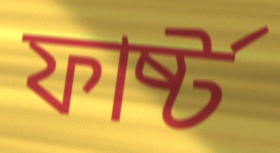
ফাৰ্ষ্ট